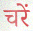
चरें